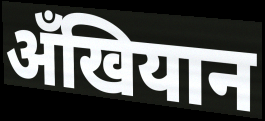
अँखियान